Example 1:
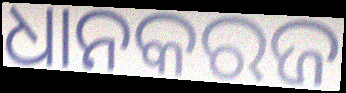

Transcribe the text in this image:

ଧାନକରଜ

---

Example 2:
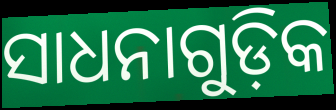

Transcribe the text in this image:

ସାଧନାଗୁଡ଼ିକ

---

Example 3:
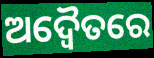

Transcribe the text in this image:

ଅଦ୍ୱୈତରେ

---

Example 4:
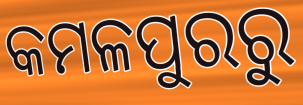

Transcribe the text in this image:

କମଳପୁରରୁ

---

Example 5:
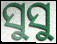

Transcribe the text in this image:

ସୁସୁ